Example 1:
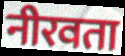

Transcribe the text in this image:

नीरवता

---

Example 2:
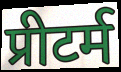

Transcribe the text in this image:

प्रीटर्म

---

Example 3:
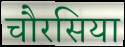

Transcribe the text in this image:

चौरसिया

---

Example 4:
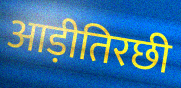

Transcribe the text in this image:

आड़ीतिरछी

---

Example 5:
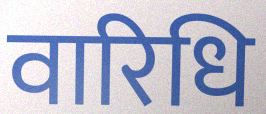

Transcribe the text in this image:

वारिधि